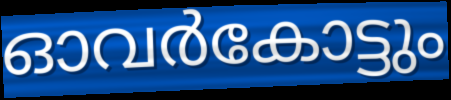
ഓവർകോട്ടും